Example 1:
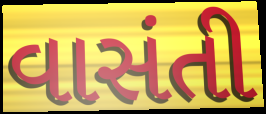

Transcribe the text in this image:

વાસંતી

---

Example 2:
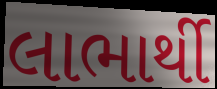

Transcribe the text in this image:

લાભાર્થી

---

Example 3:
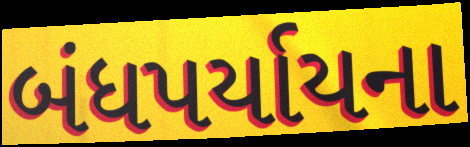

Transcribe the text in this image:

બંધપર્યાયના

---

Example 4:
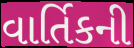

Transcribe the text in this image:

વાર્તિકની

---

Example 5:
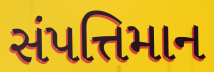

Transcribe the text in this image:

સંપત્તિમાન